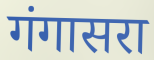
गंगासरा